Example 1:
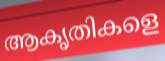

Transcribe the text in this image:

ആകൃതികളെ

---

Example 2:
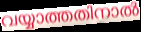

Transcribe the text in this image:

വയ്യാത്തതിനാൽ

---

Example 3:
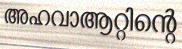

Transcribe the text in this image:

അഹവാആറ്റിന്റെ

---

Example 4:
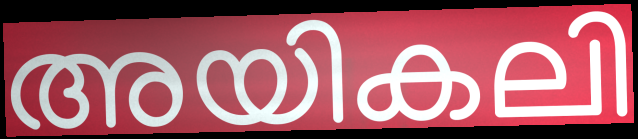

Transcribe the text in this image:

അയികലി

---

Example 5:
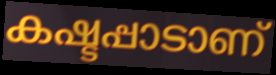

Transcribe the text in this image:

കഷ്ടപ്പാടാണ്